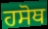
ਹਸੋਥ